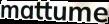
mattume